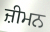
ਜ਼ੀਮਨ